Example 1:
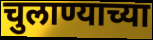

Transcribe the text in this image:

चुलाण्याच्या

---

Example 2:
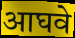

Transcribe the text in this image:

आघवे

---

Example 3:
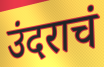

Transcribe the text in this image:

उंदराचं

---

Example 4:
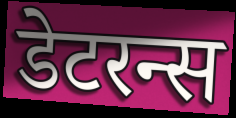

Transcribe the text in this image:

डेटरन्स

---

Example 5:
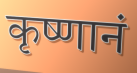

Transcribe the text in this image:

कृष्णानं